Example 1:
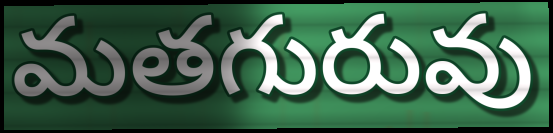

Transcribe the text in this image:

మతగురువు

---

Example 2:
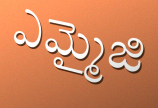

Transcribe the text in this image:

ఎమ్మైజి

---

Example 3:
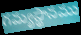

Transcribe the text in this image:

గమ్యస్థానము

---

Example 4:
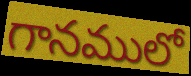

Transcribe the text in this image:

గానములో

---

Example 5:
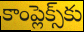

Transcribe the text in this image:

కాంప్లెక్స్‌కు